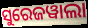
ସୁରେଜୱାଲା